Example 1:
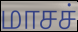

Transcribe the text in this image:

மாசச்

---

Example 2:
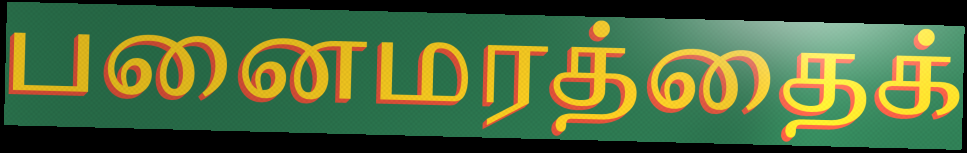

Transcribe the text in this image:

பனைமரத்தைக்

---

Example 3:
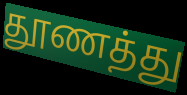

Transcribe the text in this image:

தூணத்து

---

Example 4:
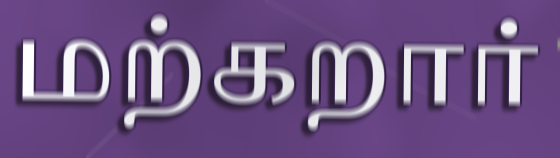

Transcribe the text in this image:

மற்கறார்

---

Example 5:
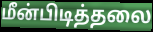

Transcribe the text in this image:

மீன்பிடித்தலை